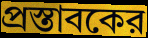
প্রস্তাবকের